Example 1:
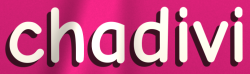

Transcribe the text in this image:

chadivi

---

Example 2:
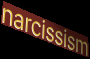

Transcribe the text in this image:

narcissism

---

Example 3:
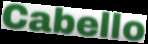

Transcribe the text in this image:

Cabello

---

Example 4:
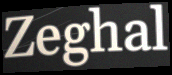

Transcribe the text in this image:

Zeghal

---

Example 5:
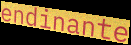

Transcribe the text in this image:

endinante